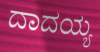
ದಾದಯ್ಯ